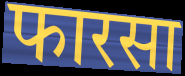
फारसा